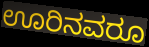
ಊರಿನವರೂ